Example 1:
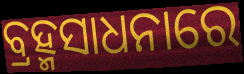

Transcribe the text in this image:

ବ୍ରହ୍ମସାଧନାରେ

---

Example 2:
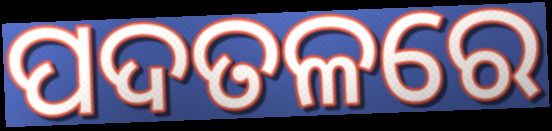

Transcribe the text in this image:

ପଦତଳରେ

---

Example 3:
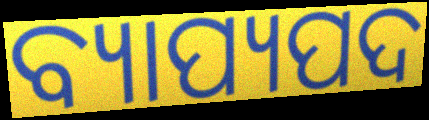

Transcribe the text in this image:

ବ୍ୟାପ୍ୟପଦ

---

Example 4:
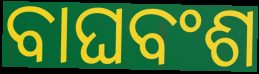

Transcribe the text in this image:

ବାଘବଂଶ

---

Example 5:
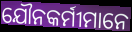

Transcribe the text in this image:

ଯୌନକର୍ମୀମାନେ